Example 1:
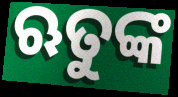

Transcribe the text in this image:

ଋତୁଙ୍କ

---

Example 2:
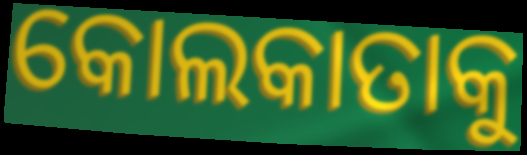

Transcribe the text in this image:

କୋଲକାତାକୁ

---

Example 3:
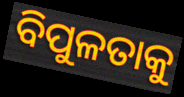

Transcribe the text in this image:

ବିପୁଳତାକୁ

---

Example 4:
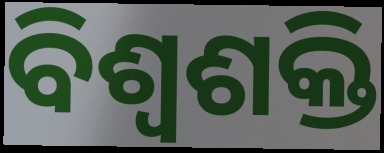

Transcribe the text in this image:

ବିଶ୍ଵଶକ୍ତି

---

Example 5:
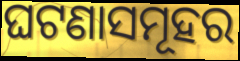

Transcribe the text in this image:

ଘଟଣାସମୂହର